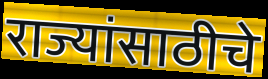
राज्यांसाठीचे